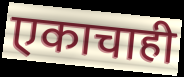
एकाचाही